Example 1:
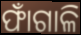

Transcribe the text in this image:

ଫାଁଗାଳି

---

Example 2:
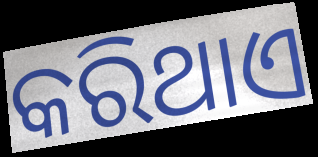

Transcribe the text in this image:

କରିଥାଏ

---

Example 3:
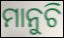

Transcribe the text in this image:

ମାନୁଚି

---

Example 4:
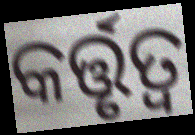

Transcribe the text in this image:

କର୍ତ୍ତୃତ୍ୱ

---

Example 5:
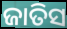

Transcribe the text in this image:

ଜାତିସ